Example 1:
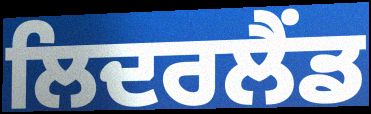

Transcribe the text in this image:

ਲਿਦਰਲੈਂਡ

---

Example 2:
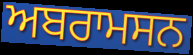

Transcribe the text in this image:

ਅਬਰਾਮਸਨ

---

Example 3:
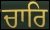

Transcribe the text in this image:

ਚਾਰਿ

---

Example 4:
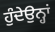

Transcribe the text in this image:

ਹੁੰਦੇਉਨ੍ਹਾਂ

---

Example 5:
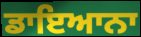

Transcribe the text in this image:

ਡਾਇਆਨਾ